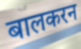
बालकरन